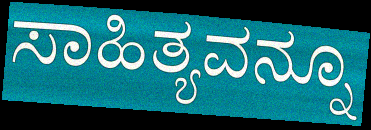
ಸಾಹಿತ್ಯವನ್ನೂ